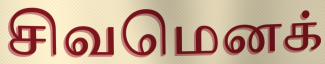
சிவமெனக்